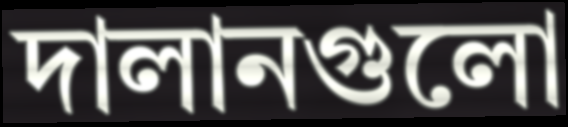
দালানগুলো